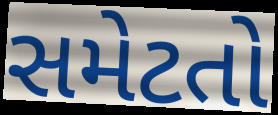
સમેટતો